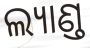
ଲ୍ୟାଣ୍ଡ